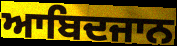
ਆਬਿਦਜਾਨ